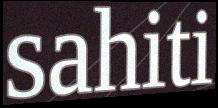
sahiti